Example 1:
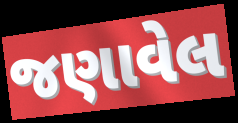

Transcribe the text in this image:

જણાવેલ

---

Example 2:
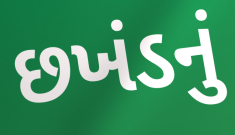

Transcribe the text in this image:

છખંડનું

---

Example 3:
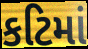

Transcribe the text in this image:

કટિમાં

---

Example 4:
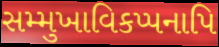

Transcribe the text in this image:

સમ્મુખાવિકપ્પનાપિ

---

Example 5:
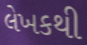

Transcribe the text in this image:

લેખકથી